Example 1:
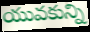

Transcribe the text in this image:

యువకున్ని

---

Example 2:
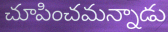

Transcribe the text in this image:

చూపించమన్నాడు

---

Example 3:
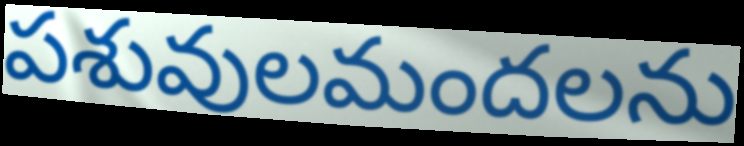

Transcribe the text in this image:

పశువులమందలను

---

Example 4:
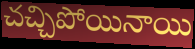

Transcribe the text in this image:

చచ్చిపోయినాయి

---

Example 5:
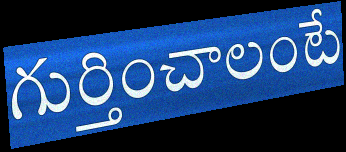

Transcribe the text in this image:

గుర్తించాలంటే